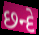
છન્દે